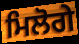
ਮਿਲੋਗੇ